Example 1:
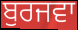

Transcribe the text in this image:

ਬੁਰਜਵਾ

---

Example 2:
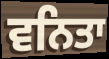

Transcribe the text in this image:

ਵਨਿਤਾ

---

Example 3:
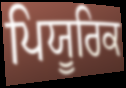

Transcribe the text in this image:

ਪਿਯੂਰਿਕ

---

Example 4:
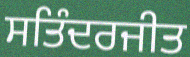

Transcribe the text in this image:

ਸਤਿੰਦਰਜੀਤ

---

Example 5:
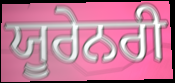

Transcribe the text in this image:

ਯੂਰੇਨਰੀ